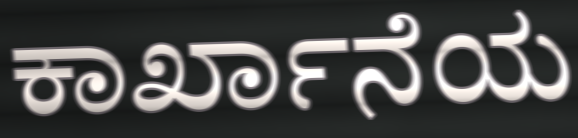
ಕಾರ್ಖಾನೆಯ